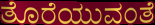
ತೊರೆಯುವಂತೆ